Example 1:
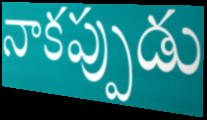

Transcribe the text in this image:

నాకప్పుడు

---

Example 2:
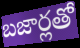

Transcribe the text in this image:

బజార్లతో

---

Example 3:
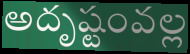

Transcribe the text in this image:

అదృష్టంవల్ల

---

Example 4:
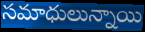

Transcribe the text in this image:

సమాధులున్నాయి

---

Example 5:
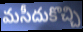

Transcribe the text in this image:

మసీదుకొచ్చి